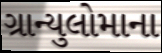
ગ્રાન્યુલોમાના